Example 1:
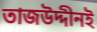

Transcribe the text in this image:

তাজউদ্দীনই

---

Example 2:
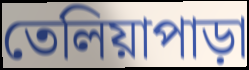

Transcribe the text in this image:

তেলিয়াপাড়া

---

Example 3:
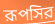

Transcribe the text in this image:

রূপসির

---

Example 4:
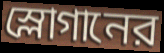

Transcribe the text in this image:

স্লোগানের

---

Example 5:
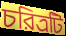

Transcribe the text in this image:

চরিত্রটি